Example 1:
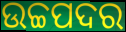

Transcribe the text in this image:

ଉଚ୍ଚପଦର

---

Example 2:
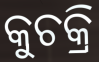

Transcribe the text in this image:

କୁଚକ୍ରି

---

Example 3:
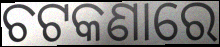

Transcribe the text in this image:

ଚଟକଣାରେ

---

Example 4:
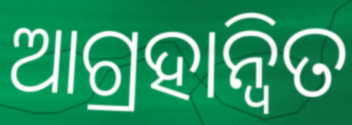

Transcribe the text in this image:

ଆଗ୍ରହାନ୍ୱିତ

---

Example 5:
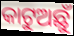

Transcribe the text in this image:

କାଟୁଅଛୁଁ